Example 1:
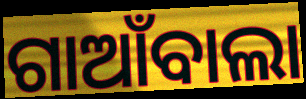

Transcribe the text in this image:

ଗାଆଁବାଲା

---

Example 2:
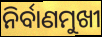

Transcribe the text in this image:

ନିର୍ବାଣମୁଖୀ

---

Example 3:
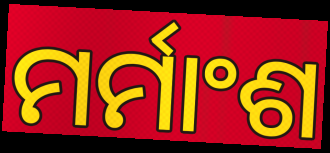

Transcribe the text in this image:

ମର୍ମାଂଶ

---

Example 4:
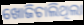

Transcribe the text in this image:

ଖୋଜିଚାଲିଥିଲା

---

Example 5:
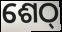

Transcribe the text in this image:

ଶେଠ୍